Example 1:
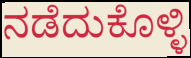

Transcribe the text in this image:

ನಡೆದುಕೊಳ್ಳಿ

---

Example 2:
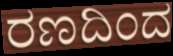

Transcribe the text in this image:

ರಣದಿಂದ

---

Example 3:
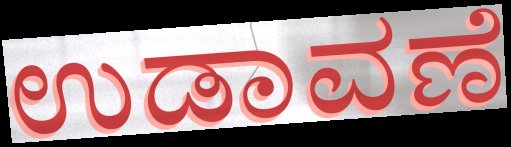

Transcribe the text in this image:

ಉಡಾವಣೆ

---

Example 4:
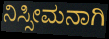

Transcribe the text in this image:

ನಿಸ್ಸೀಮನಾಗಿ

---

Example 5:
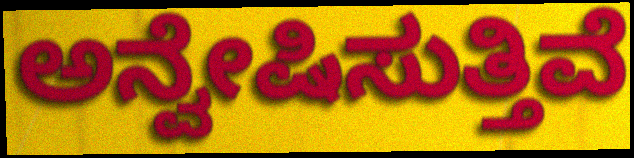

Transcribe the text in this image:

ಅನ್ವೇಷಿಸುತ್ತಿವೆ